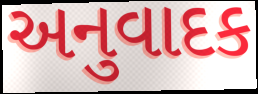
અનુવાદક